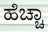
ಹೆಚ್ಚಾ